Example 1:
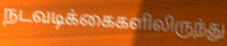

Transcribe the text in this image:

நடவடிக்கைகளிலிருந்து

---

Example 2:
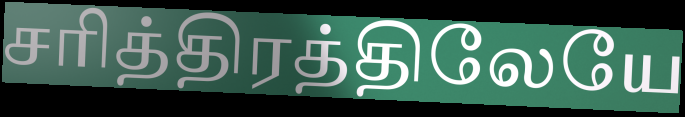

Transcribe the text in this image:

சரித்திரத்திலேயே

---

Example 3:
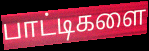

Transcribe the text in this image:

பாட்டிகளை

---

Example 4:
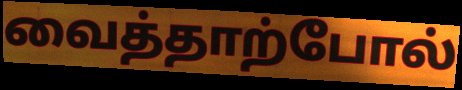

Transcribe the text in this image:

வைத்தாற்போல்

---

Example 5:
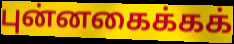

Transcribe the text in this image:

புன்னகைக்கக்